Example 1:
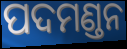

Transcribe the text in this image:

ପଦମଣ୍ଡନ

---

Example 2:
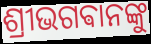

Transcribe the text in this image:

ଶ୍ରୀଭଗଵାନଙ୍କୁ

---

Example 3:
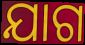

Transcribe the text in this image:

ଯାଗ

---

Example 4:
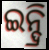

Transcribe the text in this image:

ଇନ୍ଦ୍ରି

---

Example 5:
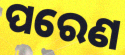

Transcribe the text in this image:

ପରେଣ